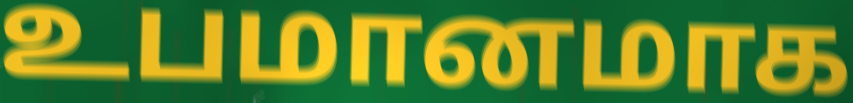
உபமானமாக